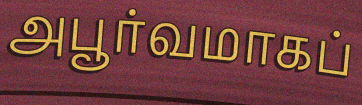
அபூர்வமாகப்